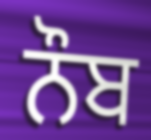
ਨੌਬ